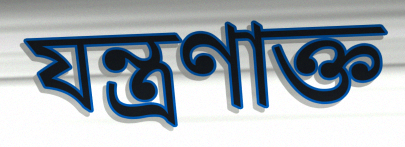
যন্ত্রণাক্ত